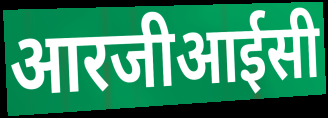
आरजीआईसी